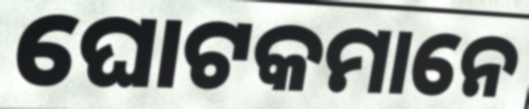
ଘୋଟକମାନେ